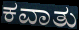
ಕವಾತು